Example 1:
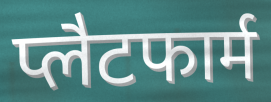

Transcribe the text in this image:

प्लैटफार्म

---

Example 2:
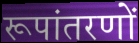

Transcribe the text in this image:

रूपांतरणों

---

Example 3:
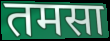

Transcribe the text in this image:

तमसा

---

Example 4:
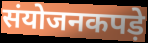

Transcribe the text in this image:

संयोजनकपड़े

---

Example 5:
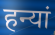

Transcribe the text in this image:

हन्यां